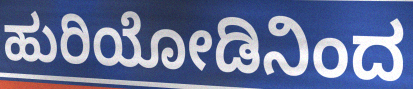
ಹುರಿಯೋಡಿನಿಂದ